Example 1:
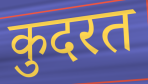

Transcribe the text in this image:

कुदरत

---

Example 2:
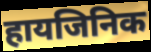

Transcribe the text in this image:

हायजिनिक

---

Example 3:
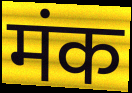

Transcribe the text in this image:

मंक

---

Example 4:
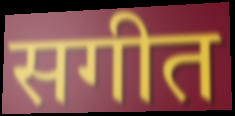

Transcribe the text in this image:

सगीत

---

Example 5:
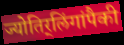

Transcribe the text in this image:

ज्योतिर्लिंगांपैकी